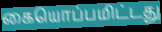
கையொப்பமிட்டது